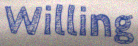
Willing